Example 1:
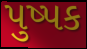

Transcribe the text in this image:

પુષ્પક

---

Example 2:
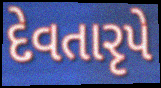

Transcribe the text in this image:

દેવતારૃપે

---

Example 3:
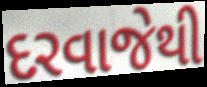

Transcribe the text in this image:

દરવાજેથી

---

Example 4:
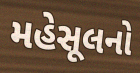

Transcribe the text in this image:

મહેસૂલનો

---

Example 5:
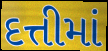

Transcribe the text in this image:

દત્તીમાં